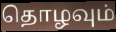
தொழவும்